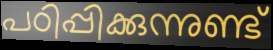
പഠിപ്പിക്കുന്നുണ്ട്